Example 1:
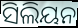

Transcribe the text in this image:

ସିଲିୟନ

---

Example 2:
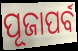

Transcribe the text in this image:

ପୂଜାପର୍ବ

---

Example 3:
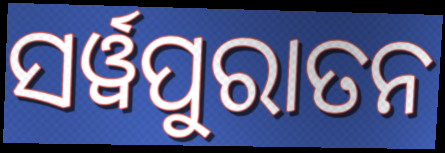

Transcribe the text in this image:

ସର୍ୱପୁରାତନ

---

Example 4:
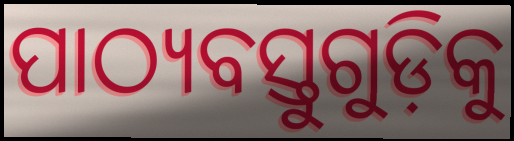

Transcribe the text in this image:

ପାଠ୍ୟବସ୍ତୁଗୁଡ଼ିକୁ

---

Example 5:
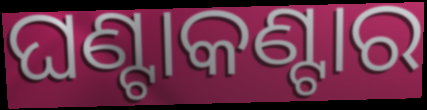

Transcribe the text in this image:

ଘଣ୍ଟାକଣ୍ଟାର